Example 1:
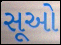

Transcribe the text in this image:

સૂઓ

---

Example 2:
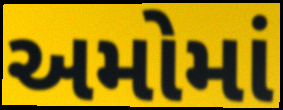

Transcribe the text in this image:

અમોમાં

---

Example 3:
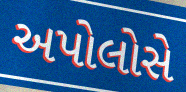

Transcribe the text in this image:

અપોલોસે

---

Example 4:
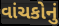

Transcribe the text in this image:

વાંચકોનું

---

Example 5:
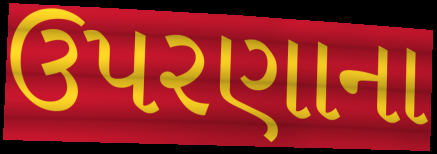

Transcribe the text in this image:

ઉપરણાના